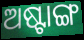
ଅଷ୍ଟାଙ୍ଗ